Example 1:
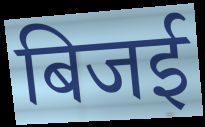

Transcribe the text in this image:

बिजई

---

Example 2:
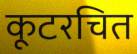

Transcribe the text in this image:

कूटरचित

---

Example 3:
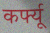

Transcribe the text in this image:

कर्फ्यू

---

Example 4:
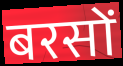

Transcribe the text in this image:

बरसों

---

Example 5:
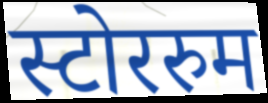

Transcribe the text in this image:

स्टोररुम